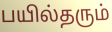
பயில்தரும்